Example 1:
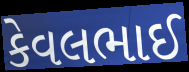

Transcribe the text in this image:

કેવલભાઈ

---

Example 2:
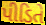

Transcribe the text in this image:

પીડિતે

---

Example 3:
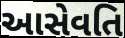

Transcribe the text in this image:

આસેવતિ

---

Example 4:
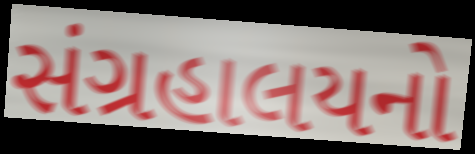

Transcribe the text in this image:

સંગ્રહાલયનો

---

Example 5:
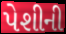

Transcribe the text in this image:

પેશીની